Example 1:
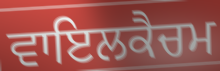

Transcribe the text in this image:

ਵਾਇਲਕੈਚਮ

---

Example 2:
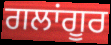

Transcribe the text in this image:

ਗਲਾਂਗੂਰ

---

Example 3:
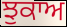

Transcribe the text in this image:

ਝੁਕਾਅ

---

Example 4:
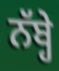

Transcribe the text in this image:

ਨੱਬ੍ਹੇ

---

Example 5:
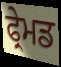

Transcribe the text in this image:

ਫ੍ਰੇਮਡ